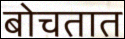
बोचतात